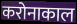
करोनाकाल